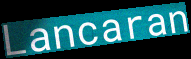
Lancaran